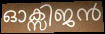
ഓക്സിജൻ